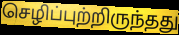
செழிப்புற்றிருந்தது